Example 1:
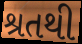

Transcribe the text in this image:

શ્રતથી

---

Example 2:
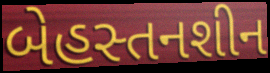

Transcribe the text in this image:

બેહસ્તનશીન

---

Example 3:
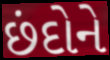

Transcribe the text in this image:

છંદોને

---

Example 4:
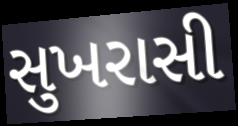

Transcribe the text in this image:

સુખરાસી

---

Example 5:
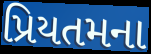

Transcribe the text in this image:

પ્રિયતમના